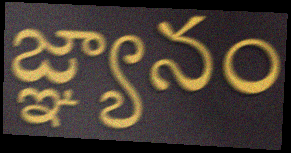
జ్ఞ్యానం